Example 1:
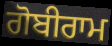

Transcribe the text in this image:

ਗੋਬੀਰਾਮ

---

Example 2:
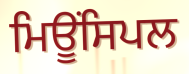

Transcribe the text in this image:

ਮਿਊਂਸਿਪਲ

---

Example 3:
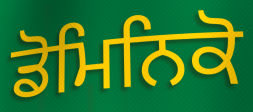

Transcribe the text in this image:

ਡੋਮਿਨਿਕੋ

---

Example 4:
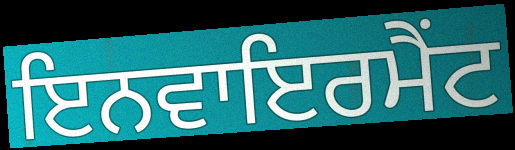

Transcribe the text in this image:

ਇਨਵਾਇਰਮੈਂਟ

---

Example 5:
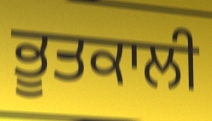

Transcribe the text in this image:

ਭੂਤਕਾਲੀ